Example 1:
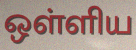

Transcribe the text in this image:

ஒள்ளிய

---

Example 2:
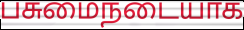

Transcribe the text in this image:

பசுமைநடையாக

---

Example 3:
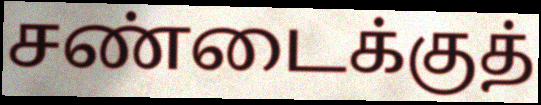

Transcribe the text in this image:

சண்டைக்குத்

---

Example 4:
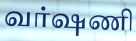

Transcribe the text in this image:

வர்ஷணி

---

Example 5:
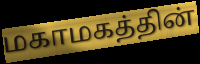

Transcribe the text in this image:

மகாமகத்தின்